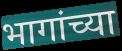
भागांच्या